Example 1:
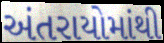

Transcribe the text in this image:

અંતરાયોમાંથી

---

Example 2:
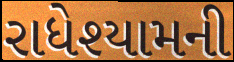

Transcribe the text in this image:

રાધેશ્યામની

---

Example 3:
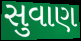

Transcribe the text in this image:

સુવાણ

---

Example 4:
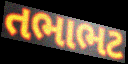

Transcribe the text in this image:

તભાભટ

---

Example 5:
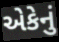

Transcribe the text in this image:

એકેનું